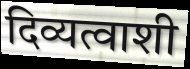
दिव्यत्वाशी